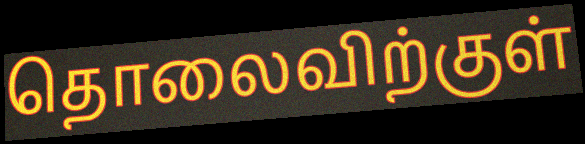
தொலைவிற்குள்